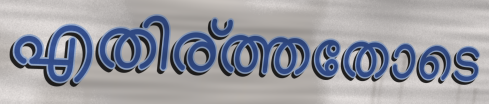
എതിര്ത്തതോടെ